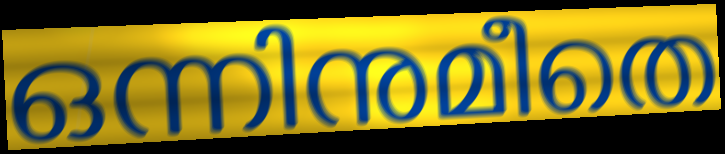
ഒന്നിനുമീതെ